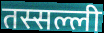
तस्सल्ली